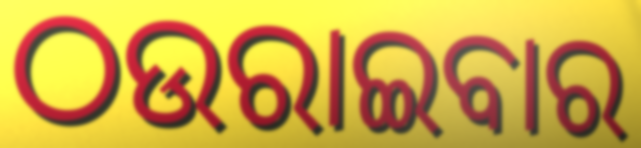
ଠଉରାଇବାର